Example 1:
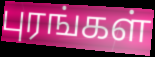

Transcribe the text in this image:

புரங்கள்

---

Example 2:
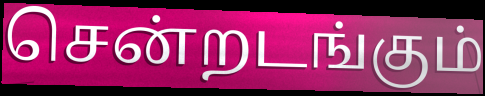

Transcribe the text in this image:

சென்றடங்கும்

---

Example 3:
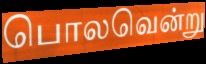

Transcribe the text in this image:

பொலவென்று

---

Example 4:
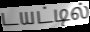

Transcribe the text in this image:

டயட்டில்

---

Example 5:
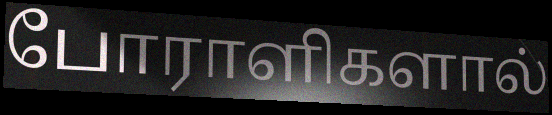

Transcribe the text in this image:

போராளிகளால்